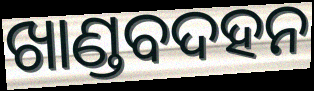
ଖାଣ୍ଡବଦହନ